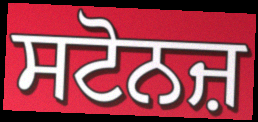
ਸਟੋਨਜ਼